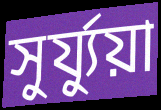
সুর্য্যুয়া